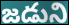
జడుని